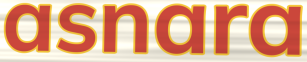
asnara